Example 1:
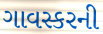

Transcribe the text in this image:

ગાવસ્કરની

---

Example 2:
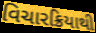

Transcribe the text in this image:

વિચારક્રિયાથી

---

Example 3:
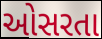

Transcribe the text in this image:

ઓસરતા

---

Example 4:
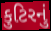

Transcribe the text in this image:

કુટિરનું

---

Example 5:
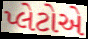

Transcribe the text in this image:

પ્લેટોએ